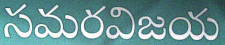
సమరవిజయ